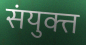
संयुक्त